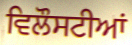
ਵਿਲੌਸਟੀਆਂ